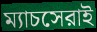
ম্যাচসেরাই